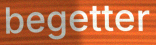
begetter